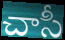
చాసీ